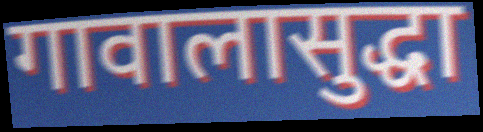
गावालासुद्धा